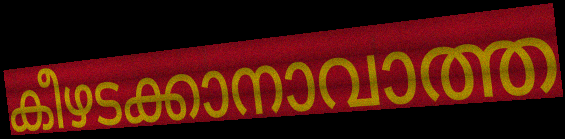
കീഴടക്കാനാവാത്ത